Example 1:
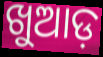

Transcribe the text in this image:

ଖୁଆଡ଼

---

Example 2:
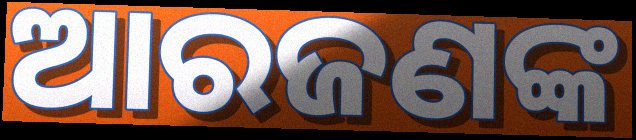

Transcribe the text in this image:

ଆରଜଣଙ୍କ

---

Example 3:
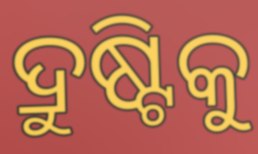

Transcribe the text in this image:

ଦ୍ରୁଷ୍ଟିକୁ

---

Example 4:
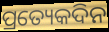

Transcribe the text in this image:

ପ୍ରତ୍ୟେକଦିନ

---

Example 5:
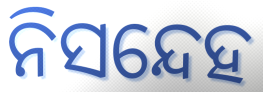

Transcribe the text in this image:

ନିସନ୍ଦେହ